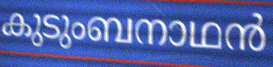
കുടുംബനാഥൻ